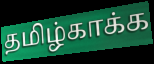
தமிழ்காக்க